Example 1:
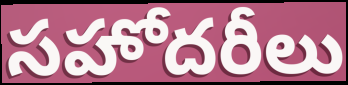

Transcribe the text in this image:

సహోదరీలు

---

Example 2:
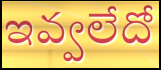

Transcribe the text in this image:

ఇవ్వలేదో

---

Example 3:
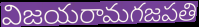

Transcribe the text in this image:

విజయరామగజపతి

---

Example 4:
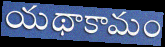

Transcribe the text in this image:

యథాకామం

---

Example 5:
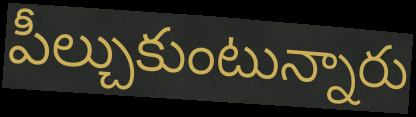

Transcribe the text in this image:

పీల్చుకుంటున్నారు